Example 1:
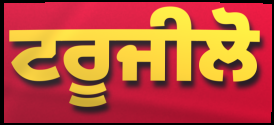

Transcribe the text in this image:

ਟਰੂਜੀਲੋ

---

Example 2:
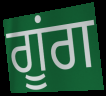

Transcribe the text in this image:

ਗੂਂਗ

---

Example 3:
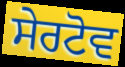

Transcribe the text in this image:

ਸੇਰਟੋਵ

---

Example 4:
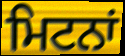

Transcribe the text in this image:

ਮਿਟਨਾਂ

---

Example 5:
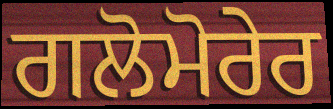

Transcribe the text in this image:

ਗਲੋਮੋਰੇਰ